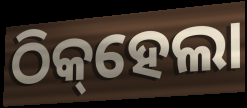
ଠିକ୍‌ହେଲା